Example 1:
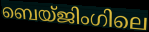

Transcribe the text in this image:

ബെയ്ജിംഗിലെ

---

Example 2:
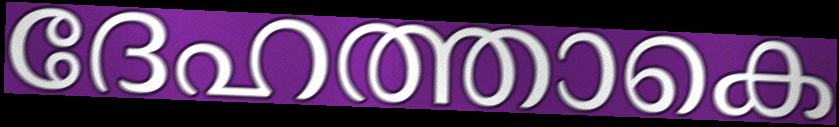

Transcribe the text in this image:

ദേഹത്താകെ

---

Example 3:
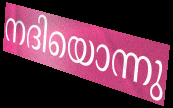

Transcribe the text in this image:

നദിയൊന്നു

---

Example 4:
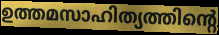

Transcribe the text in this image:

ഉത്തമസാഹിത്യത്തിന്റെ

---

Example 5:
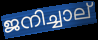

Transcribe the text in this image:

ജനിച്ചാല്